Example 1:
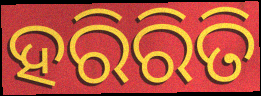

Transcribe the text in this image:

ହରିରିତି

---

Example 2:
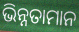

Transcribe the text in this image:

ଭିନ୍ନତାମାନ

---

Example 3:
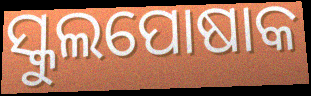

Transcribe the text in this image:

ସ୍କୁଲପୋଷାକ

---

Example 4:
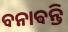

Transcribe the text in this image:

ବନାଵନ୍ତି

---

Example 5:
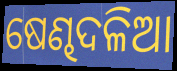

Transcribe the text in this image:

ଷେଣ୍ଢଦଳିଆ